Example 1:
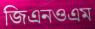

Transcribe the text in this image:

জিএনওএম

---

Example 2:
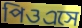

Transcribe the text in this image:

পিওএসে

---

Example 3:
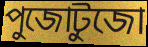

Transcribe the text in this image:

পুজোটুজো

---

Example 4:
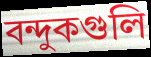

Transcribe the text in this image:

বন্দুকগুলি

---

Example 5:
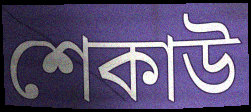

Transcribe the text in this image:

শেকাউ